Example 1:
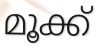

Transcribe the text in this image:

മൂക്ക്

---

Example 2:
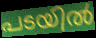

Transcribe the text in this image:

പടയിൽ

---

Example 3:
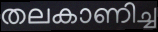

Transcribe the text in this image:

തലകാണിച്ച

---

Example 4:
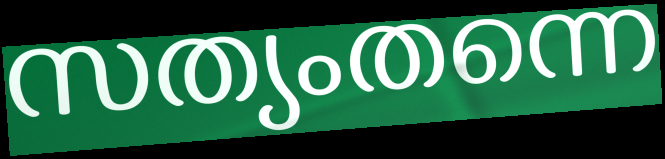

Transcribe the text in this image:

സത്യംതന്നെ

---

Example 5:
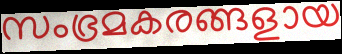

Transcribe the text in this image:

സംഭ്രമകരങ്ങളായ